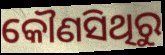
କୌଣସିଥିରୁ